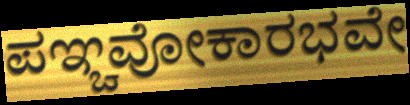
ಪಞ್ಚವೋಕಾರಭವೇ